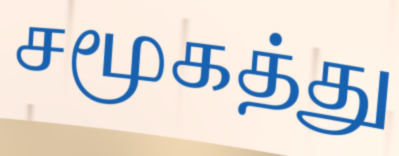
சமூகத்து